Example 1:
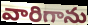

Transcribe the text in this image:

వారిగాను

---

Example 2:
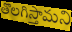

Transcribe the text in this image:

తొలగిస్తామని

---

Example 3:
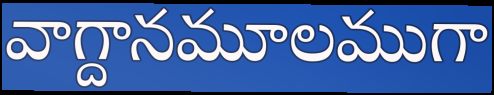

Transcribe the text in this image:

వాగ్దానమూలముగా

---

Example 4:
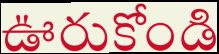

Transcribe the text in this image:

ఊరుకోండి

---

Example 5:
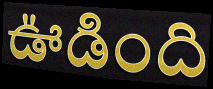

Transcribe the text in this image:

ఊడింది